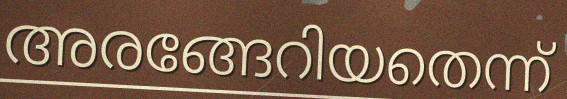
അരങ്ങേറിയതെന്ന്